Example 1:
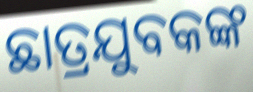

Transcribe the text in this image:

ଛାତ୍ରଯୁବକଙ୍କ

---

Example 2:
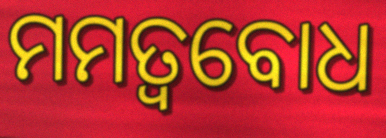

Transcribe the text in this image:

ମମତ୍ବବୋଧ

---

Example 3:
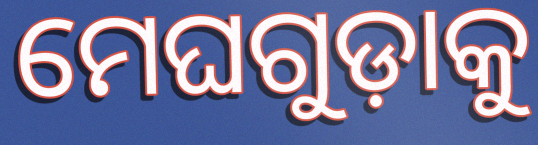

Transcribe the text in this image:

ମେଘଗୁଡ଼ାକୁ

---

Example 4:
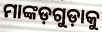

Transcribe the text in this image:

ମାଙ୍କଡ଼ଗୁଡ଼ାକୁ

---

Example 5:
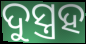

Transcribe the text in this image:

ଦୁସ୍ତ୍ରହ